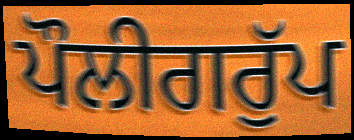
ਪੌਲੀਗਰੁੱਪ